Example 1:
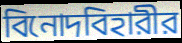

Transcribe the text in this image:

বিনোদবিহারীর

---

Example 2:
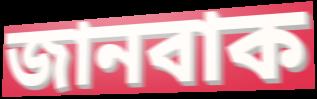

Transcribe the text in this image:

জানবাক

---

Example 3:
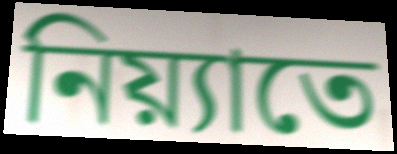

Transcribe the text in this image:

নিয়্যাতে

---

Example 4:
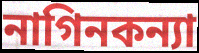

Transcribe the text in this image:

নাগিনকন্যা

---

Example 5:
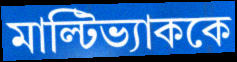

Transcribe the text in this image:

মাল্টিভ্যাককে